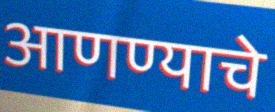
आणण्याचे